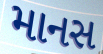
માનસ